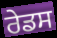
ਰੇਡਸ